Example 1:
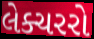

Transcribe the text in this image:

લેક્ચરરો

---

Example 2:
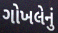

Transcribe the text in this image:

ગોખલેનું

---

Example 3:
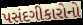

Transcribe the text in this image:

પસંદગીકારોનો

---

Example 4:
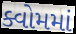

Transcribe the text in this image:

ક્વોમમાં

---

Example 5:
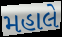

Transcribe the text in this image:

મહાલે